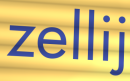
zellij